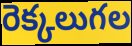
రెక్కలుగల